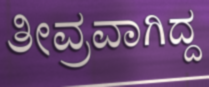
ತೀವ್ರವಾಗಿದ್ದ